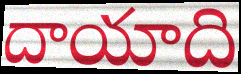
దాయాది